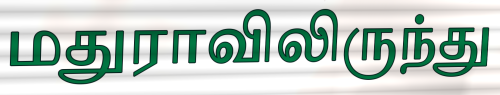
மதுராவிலிருந்து